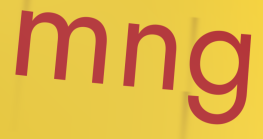
mng